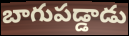
బాగుపడ్డాడు